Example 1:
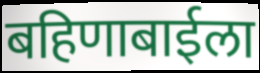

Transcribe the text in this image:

बहिणाबाईला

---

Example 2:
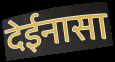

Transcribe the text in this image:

देईनासा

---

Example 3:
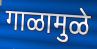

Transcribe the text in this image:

गाळामुळे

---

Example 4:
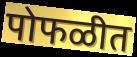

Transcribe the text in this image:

पोफळीत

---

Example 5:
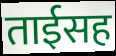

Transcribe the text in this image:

ताईसह